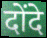
दोंदे